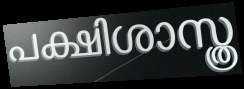
പക്ഷിശാസ്ത്ര